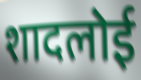
शादलोई